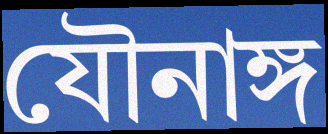
যৌনাঙ্গ